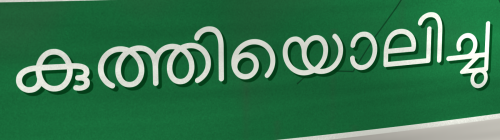
കുത്തിയൊലിച്ചു